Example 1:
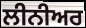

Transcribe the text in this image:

ਲੀਨੀਅਰ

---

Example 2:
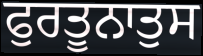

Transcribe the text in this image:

ਫੁਰਤੂਨਾਤੁਸ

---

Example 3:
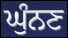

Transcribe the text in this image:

ਘੁੰਨਣ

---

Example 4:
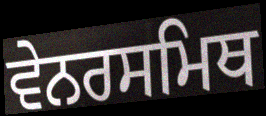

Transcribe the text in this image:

ਵੇਨਰਸਮਿਥ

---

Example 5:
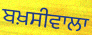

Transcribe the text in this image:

ਬਖ਼ਸੀਵਾਲਾ